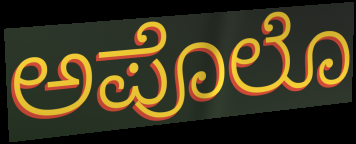
ಅಪೊಲೊ